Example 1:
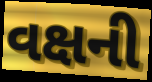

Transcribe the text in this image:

વક્ષની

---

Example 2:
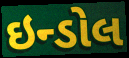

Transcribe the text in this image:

ઇન્ડોલ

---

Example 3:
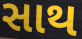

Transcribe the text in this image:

સાથ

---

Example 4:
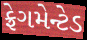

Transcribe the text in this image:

ફ્રેગમેન્ટેડ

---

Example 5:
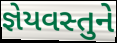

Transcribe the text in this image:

જ્ઞેયવસ્તુને